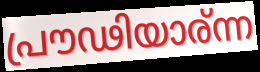
പ്രൗഢിയാര്ന്ന